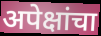
अपेक्षांचा